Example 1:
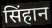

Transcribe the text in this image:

सिंहान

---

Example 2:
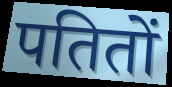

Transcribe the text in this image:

पतितों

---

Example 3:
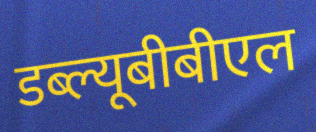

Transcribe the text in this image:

डब्ल्यूबीबीएल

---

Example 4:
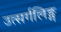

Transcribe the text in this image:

उत्सर्गलिङ्ग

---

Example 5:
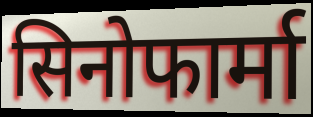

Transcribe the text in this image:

सिनोफार्मा